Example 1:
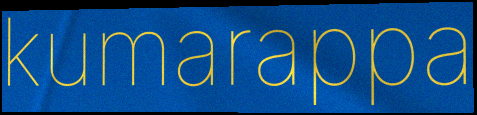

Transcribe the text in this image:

kumarappa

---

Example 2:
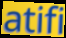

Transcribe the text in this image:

atifi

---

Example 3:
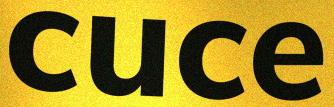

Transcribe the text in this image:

cuce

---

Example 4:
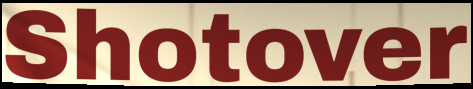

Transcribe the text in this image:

Shotover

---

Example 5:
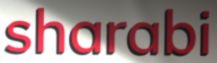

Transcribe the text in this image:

sharabi